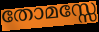
തോമസ്സേ